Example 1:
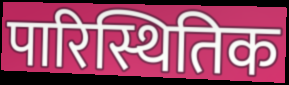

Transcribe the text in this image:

पारिस्थितिक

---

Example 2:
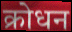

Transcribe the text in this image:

क्रोधन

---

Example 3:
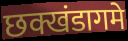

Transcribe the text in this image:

छक्खंडागमे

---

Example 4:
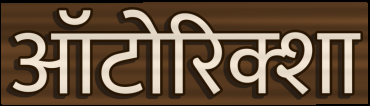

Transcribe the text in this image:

ऑटोरिक्‍शा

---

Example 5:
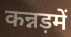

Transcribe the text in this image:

कन्नड़में